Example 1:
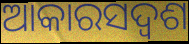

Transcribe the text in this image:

ଆକାରସଦ୍ୱଶ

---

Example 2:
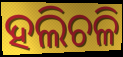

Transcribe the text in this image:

ହଲିଚଳି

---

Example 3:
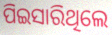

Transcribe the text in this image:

ପିଇସାରିଥିଲେ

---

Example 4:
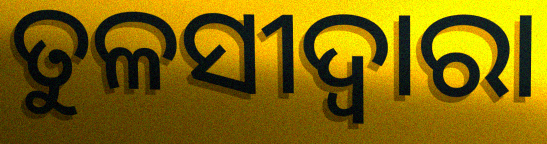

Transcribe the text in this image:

ତୁଳସୀଦ୍ବାରା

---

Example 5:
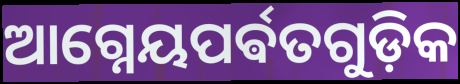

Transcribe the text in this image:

ଆଗ୍ନେୟପର୍ଵତଗୁଡ଼ିକ